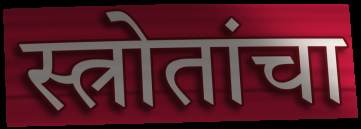
स्त्रोतांचा